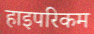
हाइपरिकम